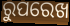
ରୁପରେଖ